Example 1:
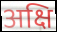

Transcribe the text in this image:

अक्षि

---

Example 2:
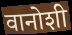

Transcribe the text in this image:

वानोशी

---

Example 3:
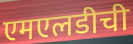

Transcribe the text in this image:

एमएलडीची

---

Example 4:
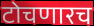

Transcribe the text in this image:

टोचणारच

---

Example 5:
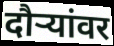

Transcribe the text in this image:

दौऱ्यांवर